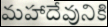
మహాదేవునికి